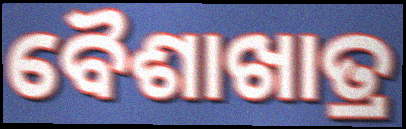
ବୈଶାଖାତ୍ର